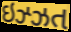
ઇઝ્ઝત